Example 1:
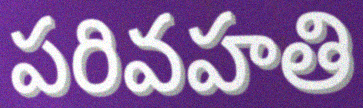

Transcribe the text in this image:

పరివహతి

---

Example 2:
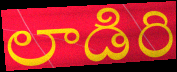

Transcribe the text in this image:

లాడిరి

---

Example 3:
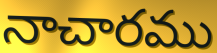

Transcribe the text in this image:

నాచారము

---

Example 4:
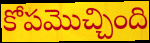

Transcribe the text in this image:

కోపమొచ్చింది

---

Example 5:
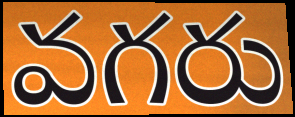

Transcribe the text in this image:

వగరు